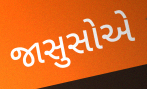
જાસુસોએ